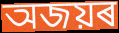
অজয়ৰ